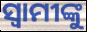
ସ୍ବାମୀଙ୍କୁ